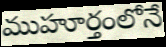
ముహూర్తంలోనే